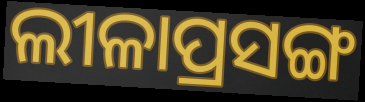
ଲୀଳାପ୍ରସଙ୍ଗ